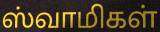
ஸ்வாமிகள்